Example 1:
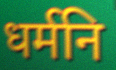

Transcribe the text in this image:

धर्मनि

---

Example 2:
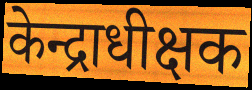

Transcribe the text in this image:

केन्द्राधीक्षक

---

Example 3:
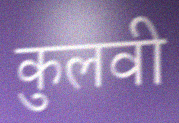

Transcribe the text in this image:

कुलवी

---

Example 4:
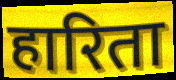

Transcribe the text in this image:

हारिता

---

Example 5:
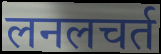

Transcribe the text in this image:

लनलचर्त